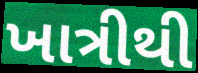
ખાત્રીથી